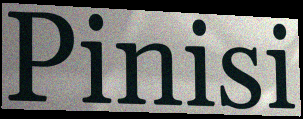
Pinisi